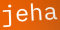
jeha